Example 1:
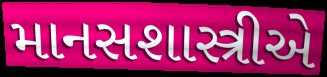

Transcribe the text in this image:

માનસશાસ્ત્રીએ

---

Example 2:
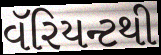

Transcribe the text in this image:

વૅરિયન્ટથી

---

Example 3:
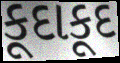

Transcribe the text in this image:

કૂદાકૂદ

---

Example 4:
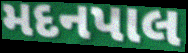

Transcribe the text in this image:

મદનપાલ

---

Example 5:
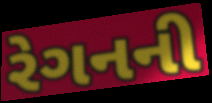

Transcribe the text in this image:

રેગનની